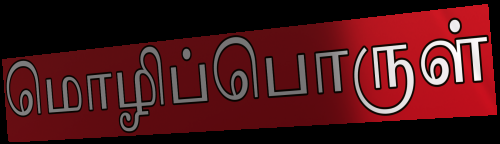
மொழிப்பொருள்